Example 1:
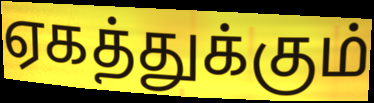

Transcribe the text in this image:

ஏகத்துக்கும்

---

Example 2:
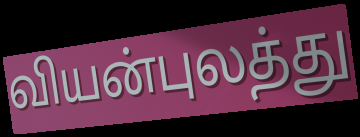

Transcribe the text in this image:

வியன்புலத்து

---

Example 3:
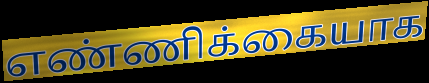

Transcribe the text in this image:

எண்ணிக்கையாக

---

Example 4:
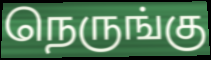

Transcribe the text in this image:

நெருங்கு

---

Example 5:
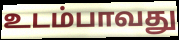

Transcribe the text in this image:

உடம்பாவது